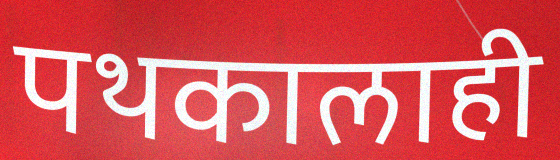
पथकालाही